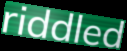
riddled